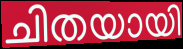
ചിതയായി